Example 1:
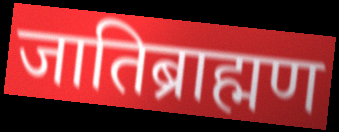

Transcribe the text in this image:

जातिब्राह्मण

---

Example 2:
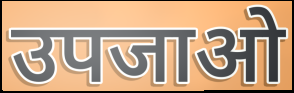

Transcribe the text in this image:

उपजाओ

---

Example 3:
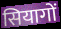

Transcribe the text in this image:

सियागों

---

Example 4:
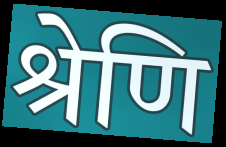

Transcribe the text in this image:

श्रेणि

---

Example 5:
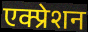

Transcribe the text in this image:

एक्प्रेशन